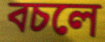
বচলে